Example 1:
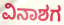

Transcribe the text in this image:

ವಿನಾಶಗ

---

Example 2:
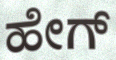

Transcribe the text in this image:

ಹೇಗ್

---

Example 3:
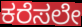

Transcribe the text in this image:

ಕರೆಸಲೇ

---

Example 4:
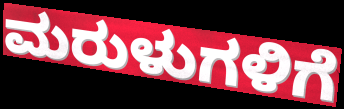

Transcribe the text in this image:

ಮರುಳುಗಳಿಗೆ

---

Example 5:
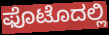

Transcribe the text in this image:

ಫೊಟೊದಲ್ಲಿ